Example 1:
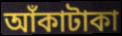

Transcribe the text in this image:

আঁকাটাকা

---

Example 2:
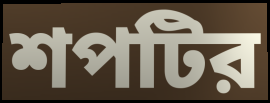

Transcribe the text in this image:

শপটির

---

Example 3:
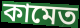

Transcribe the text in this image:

কামেত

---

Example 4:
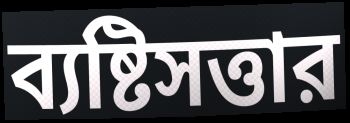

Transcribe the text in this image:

ব্যষ্টিসত্তার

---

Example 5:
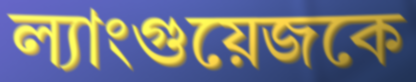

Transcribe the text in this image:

ল্যাংগুয়েজকে